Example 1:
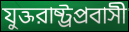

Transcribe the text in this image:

যুক্তরাষ্ট্রপ্রবাসী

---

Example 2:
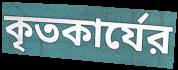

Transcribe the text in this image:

কৃতকার্যের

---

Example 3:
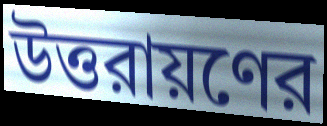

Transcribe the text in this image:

উত্তরায়ণের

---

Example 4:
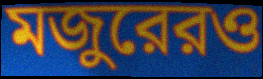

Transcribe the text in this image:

মজুরেরও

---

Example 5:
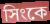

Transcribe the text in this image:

সিংকে